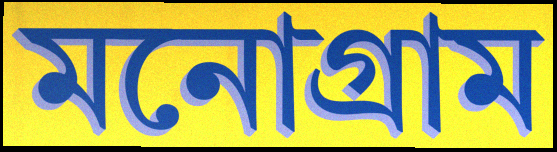
মনোগ্রাম